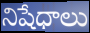
నిషేధాలు